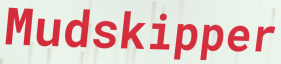
Mudskipper